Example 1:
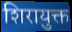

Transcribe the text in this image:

शिरायुक्त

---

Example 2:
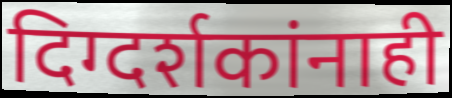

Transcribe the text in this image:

दिग्दर्शकांनाही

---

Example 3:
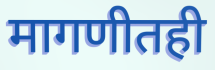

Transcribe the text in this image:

मागणीतही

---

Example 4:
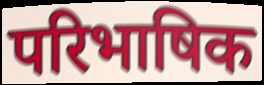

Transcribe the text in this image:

परिभाषिक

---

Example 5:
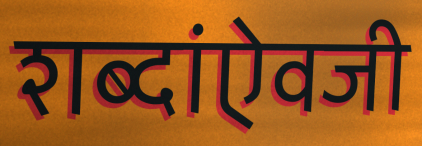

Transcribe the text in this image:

शब्दांऐवजी